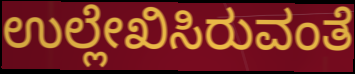
ಉಲ್ಲೇಖಿಸಿರುವಂತೆ